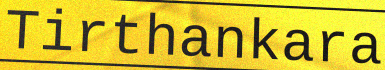
Tirthankara